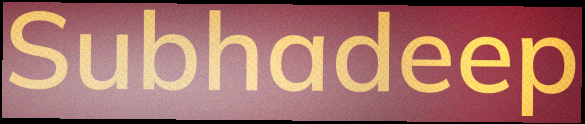
Subhadeep